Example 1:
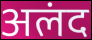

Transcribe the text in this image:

अलंद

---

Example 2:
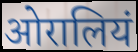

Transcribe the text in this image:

ओरालियं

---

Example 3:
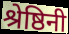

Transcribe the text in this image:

श्रेष्ठिनी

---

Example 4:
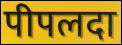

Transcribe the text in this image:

पीपलदा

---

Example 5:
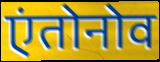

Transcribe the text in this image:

एंतोनोव